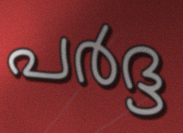
പർദ്ദ